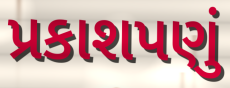
પ્રકાશપણું